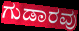
ಗುಡಾರವು